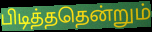
பிடித்ததென்றும்